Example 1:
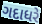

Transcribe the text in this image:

ગદાધરે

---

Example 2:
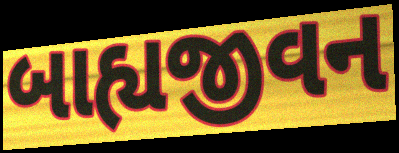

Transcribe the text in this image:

બાહ્યજીવન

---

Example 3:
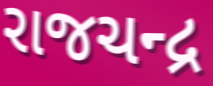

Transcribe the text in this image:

રાજચન્દ્ર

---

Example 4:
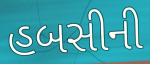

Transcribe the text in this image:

હબસીની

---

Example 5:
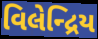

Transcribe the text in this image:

વિલેન્દ્રિય